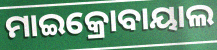
ମାଇକ୍ରୋବାୟାଲ